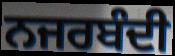
ਨਜਰਬੰਦੀ